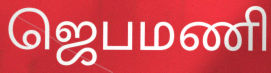
ஜெபமணி